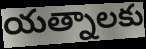
యత్నాలకు